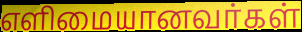
எளிமையானவர்கள்